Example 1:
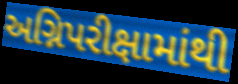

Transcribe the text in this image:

અગ્નિપરીક્ષામાંથી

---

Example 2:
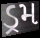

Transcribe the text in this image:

ડ્રમ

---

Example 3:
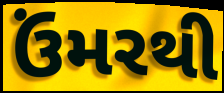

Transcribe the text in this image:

ઉંમરથી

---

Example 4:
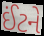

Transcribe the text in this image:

ઈંટને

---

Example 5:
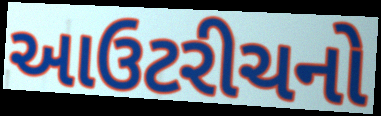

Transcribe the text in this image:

આઉટરીચનો